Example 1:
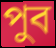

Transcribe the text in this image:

পুব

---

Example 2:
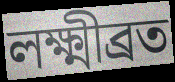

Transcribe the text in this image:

লক্ষ্মীব্রত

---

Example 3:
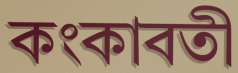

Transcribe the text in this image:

কংকাবতী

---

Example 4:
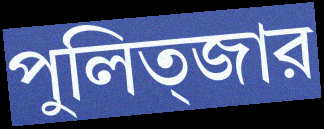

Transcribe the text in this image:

পুলিত্জার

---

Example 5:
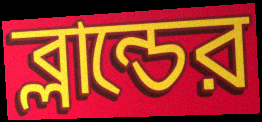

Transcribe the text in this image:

ব্লান্ডের